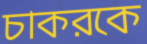
চাকরকে